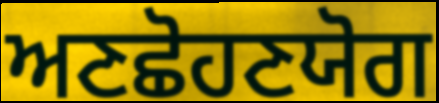
ਅਣਛੋਹਣਯੋਗ